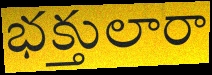
భక్తులారా